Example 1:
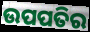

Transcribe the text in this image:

ଉପପତିର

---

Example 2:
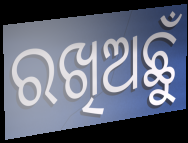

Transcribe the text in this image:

ରଖିଅଛୁଁ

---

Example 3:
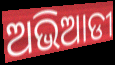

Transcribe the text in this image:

ଅଭିଆଡୀ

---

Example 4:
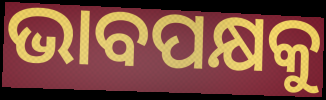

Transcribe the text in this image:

ଭାବପକ୍ଷକୁ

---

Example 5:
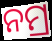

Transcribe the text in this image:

ନମ୍ର